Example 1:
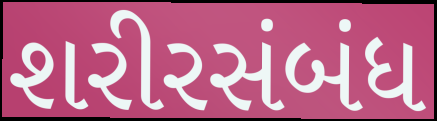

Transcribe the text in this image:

શરીરસંબંધ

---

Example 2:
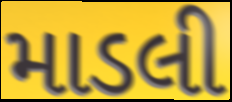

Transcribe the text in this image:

માડલી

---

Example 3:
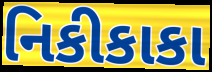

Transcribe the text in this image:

નિકીકાકા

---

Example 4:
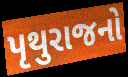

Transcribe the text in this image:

પૃથુરાજનો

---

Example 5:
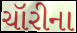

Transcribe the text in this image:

ચૉરીના